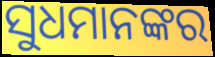
ସୁଧମାନଙ୍କର